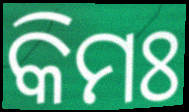
କିମଃ